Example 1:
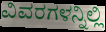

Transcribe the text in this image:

ವಿವರಗಳನ್ನಿಲ್ಲಿ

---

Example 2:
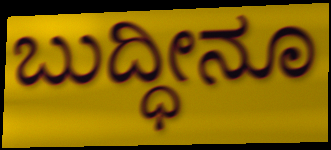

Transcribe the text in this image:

ಬುದ್ಧೀನೂ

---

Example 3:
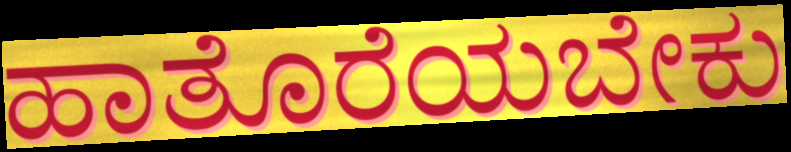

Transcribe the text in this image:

ಹಾತೊರೆಯಬೇಕು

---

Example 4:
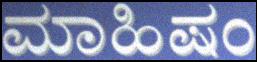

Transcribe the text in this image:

ಮಾಹಿಷಂ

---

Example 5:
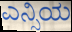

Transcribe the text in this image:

ಎನ್ಸಿಯ